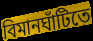
বিমানঘাঁটিতে